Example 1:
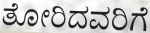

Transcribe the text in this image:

ತೋರಿದವರಿಗೆ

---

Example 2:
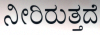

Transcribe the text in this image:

ನೀರಿರುತ್ತದೆ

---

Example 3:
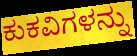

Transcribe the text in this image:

ಕುಕವಿಗಳನ್ನು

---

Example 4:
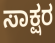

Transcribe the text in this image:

ಸಾಕ್ಷರ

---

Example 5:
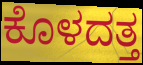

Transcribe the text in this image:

ಕೊಳದತ್ತ